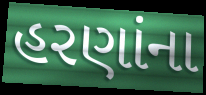
હરણાંના